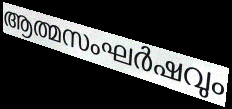
ആത്മസംഘർഷവും